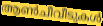
ആൺചീവീടുകൾ